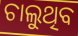
ଚାଲୁଥିବ